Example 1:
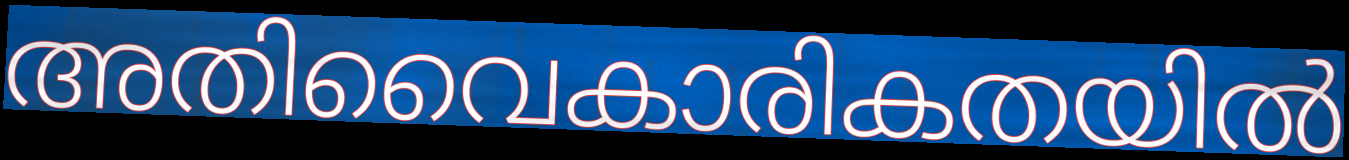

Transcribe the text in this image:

അതിവൈകാരികതയിൽ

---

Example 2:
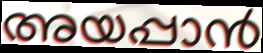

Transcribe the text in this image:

അയപ്പാൻ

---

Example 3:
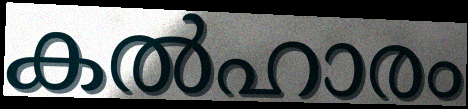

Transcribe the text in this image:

കൽഹാരം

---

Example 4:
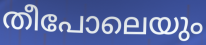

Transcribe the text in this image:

തീപോലെയും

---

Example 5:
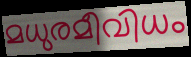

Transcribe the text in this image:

മധുരമീവിധം